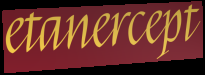
etanercept